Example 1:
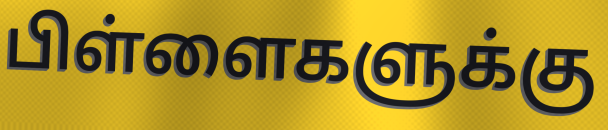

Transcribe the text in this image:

பிள்ளைகளுக்கு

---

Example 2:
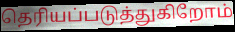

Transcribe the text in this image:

தெரியப்படுத்துகிறோம்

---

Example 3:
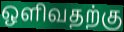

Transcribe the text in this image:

ஒளிவதற்கு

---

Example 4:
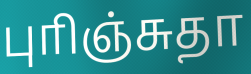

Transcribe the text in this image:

புரிஞ்சுதா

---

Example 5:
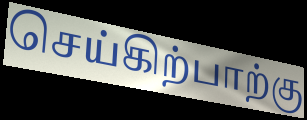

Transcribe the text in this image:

செய்கிற்பாற்கு